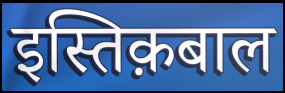
इस्तिक़बाल